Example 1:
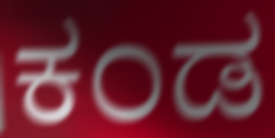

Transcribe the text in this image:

ಕಂಡ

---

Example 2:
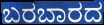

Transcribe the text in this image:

ಬರಬಾರದ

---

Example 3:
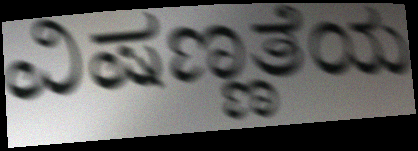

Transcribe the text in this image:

ವಿಷಣ್ಣತೆಯ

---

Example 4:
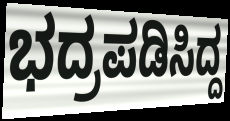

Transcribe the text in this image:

ಭದ್ರಪಡಿಸಿದ್ದ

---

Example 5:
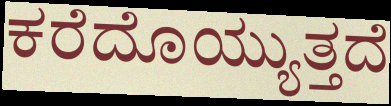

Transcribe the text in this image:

ಕರೆದೊಯ್ಯುತ್ತದೆ